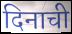
दिनाची